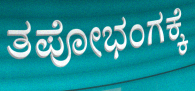
ತಪೋಭಂಗಕ್ಕೆ